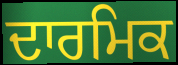
ਦਾਰਮਿਕ